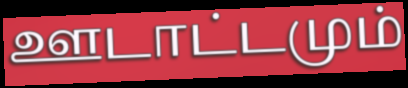
ஊடாட்டமும்